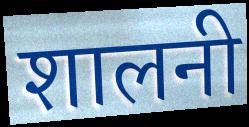
शालनी